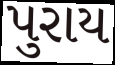
પુરાય